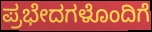
ಪ್ರಭೇದಗಳೊಂದಿಗೆ